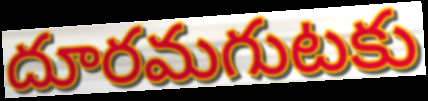
దూరమగుటకు